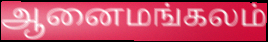
ஆனைமங்கலம்